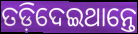
ତଡ଼ିଦେଇଥାନ୍ତେ